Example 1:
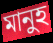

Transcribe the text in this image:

মানুহ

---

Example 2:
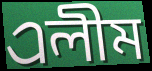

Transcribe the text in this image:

এলীম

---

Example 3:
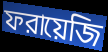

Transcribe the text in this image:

ফরায়েজি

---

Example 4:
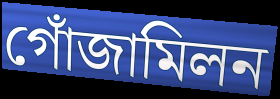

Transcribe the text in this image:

গোঁজামিলন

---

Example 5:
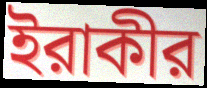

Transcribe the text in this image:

ইরাকীর